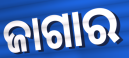
ଜାଗାର